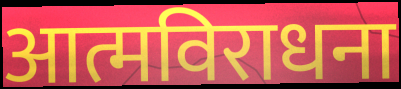
आत्मविराधना